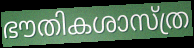
ഭൗതികശാസ്ത്ര